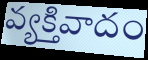
వ్యక్తివాదం